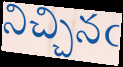
నిచ్చినఁ